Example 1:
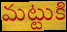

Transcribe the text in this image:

మట్టుకి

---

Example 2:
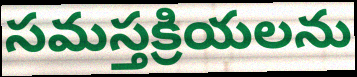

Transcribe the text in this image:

సమస్తక్రియలను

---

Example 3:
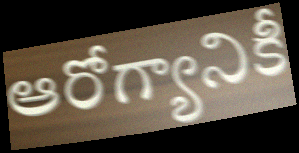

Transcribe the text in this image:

ఆరోగ్యానికీ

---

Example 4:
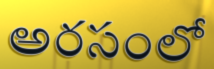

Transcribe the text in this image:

అరసంలో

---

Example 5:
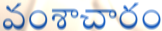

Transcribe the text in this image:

వంశాచారం